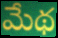
మేథ